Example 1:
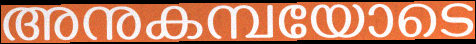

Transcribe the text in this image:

അനുകമ്പയോടെ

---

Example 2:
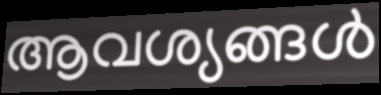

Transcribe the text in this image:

ആവശ്യങ്ങൾ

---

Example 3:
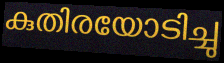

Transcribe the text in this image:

കുതിരയോടിച്ചു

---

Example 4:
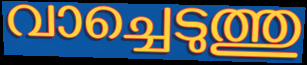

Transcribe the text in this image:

വാച്ചെടുത്തു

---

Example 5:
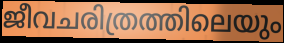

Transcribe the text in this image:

ജീവചരിത്രത്തിലെയും